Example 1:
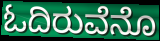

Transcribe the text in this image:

ಓದಿರುವೆನೊ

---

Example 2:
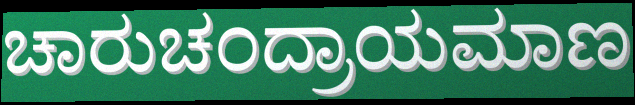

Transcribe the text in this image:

ಚಾರುಚಂದ್ರಾಯಮಾಣ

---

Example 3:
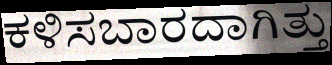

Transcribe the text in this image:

ಕಳಿಸಬಾರದಾಗಿತ್ತು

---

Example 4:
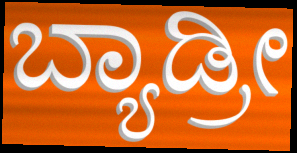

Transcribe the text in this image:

ಬ್ಯಾಡ್ರೀ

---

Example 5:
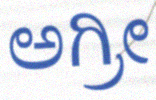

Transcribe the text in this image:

ಅಗ್ರೀ